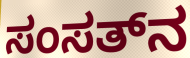
ಸಂಸತ್‌ನ